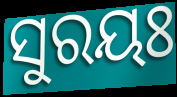
ସୁରୟଃ